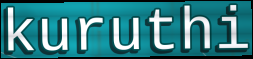
kuruthi